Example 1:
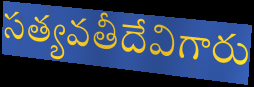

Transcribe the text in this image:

సత్యవతీదేవిగారు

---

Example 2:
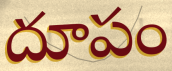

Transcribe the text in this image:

దూపం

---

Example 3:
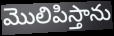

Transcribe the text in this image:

మొలిపిస్తాను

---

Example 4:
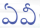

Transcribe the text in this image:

ఏవీ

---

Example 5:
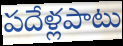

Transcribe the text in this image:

పదేళ్లపాటు